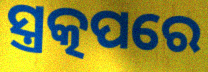
ସ୍ତ୍ରତ୍କପରେ